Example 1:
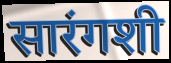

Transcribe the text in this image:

सारंगशी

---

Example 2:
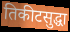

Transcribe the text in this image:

तिकीटसुद्धा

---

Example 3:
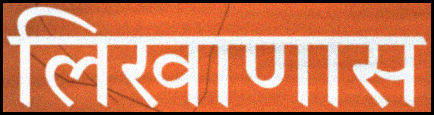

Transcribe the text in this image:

लिखाणास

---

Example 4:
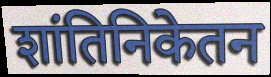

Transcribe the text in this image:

शांतिनिकेतन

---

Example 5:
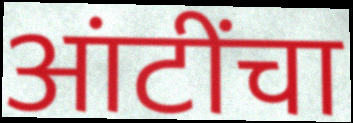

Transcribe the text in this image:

आंटींचा